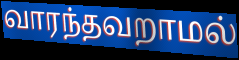
வாரந்தவறாமல்